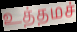
உத்தமச்